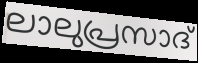
ലാലുപ്രസാദ്